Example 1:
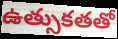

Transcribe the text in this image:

ఉత్సుకతతో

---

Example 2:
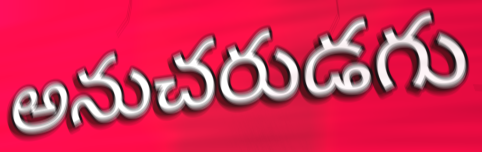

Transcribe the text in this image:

అనుచరుడగు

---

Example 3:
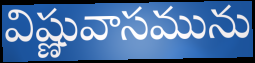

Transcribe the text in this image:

విష్ణువాసమును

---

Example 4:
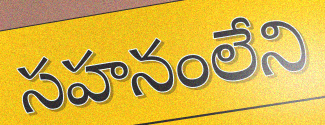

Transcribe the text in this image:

సహనంలేని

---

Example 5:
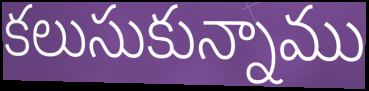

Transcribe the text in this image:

కలుసుకున్నాము